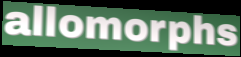
allomorphs